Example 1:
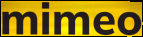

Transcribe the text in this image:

mimeo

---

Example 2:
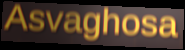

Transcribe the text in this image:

Asvaghosa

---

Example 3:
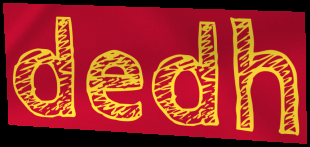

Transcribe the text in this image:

dedh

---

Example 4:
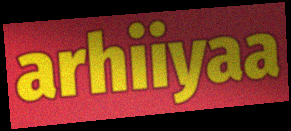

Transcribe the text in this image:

arhiiyaa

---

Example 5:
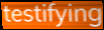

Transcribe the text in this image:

testifying